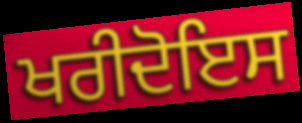
ਖਰੀਦੋਇਸ